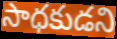
సాధకుడని